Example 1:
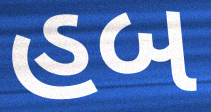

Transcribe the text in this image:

હબ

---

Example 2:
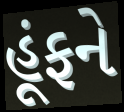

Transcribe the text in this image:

હૂંફને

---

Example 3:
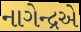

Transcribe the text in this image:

નાગેન્દ્રએ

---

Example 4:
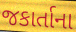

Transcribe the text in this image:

જકાર્તાના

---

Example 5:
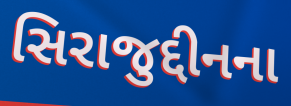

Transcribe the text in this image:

સિરાજુદ્દીનના